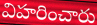
విహరించారు